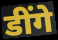
डींगे